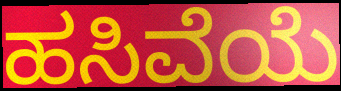
ಹಸಿವೆಯೆ